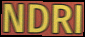
NDRI